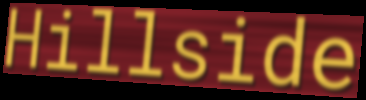
Hillside